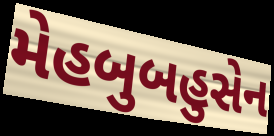
મેહબુબહુસેન